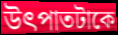
উৎপাতটাকে